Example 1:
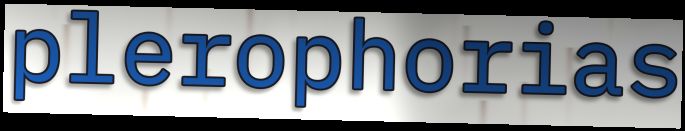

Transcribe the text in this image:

plerophorias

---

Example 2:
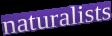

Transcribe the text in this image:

naturalists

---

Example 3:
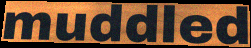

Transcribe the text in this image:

muddled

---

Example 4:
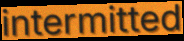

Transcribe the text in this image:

intermitted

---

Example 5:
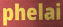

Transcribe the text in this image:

phelai